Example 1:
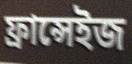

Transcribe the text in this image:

ফ্ৰান্সেইজ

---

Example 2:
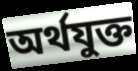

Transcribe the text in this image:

অৰ্থযুক্ত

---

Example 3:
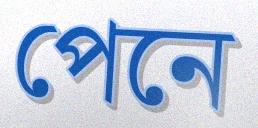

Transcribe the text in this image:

পেনে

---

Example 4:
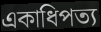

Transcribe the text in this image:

একাধিপত্য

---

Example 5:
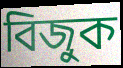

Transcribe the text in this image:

বিজুক